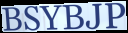
BSYBJP